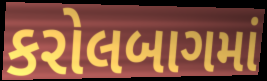
કરોલબાગમાં